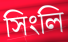
সিংলি